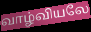
வாழ்வியலே